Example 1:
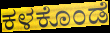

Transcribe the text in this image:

ಕಳಕೊಂಡೆ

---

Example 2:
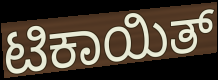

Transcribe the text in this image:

ಟಿಕಾಯಿತ್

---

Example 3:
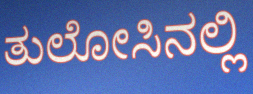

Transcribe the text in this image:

ತುಲೋಸಿನಲ್ಲಿ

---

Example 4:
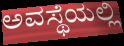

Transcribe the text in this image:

ಅವಸ್ಥೆಯಲ್ಲಿ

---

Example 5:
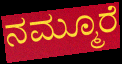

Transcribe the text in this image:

ನಮ್ಮೂರೆ